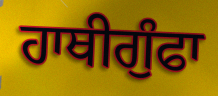
ਹਾਥੀਗੁੰਫਾ